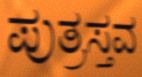
ಪುತ್ರಸ್ತವ